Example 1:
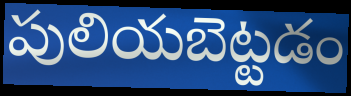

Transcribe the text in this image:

పులియబెట్టడం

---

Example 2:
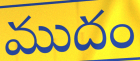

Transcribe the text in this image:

ముదం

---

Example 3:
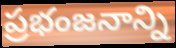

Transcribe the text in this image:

ప్రభంజనాన్ని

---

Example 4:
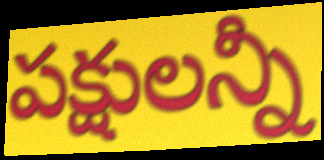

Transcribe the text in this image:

పక్షులన్నీ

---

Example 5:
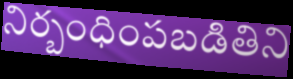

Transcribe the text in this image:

నిర్బంధింపబడితిని